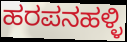
ಹರಪನಹಳ್ಳಿ